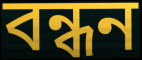
বন্ধন